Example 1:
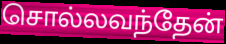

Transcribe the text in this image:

சொல்லவந்தேன்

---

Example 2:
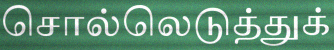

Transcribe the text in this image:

சொல்லெடுத்துக்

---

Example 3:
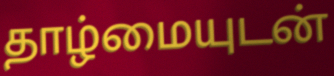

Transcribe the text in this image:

தாழ்மையுடன்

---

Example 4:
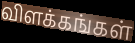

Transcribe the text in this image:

விளக்கங்கள்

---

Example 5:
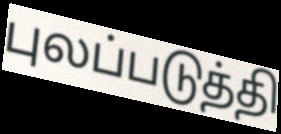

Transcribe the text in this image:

புலப்படுத்தி